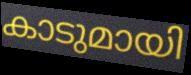
കാടുമായി